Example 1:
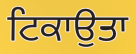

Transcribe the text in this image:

ਟਿਕਾਉਤਾ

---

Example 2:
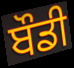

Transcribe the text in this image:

ਬੌਡੀ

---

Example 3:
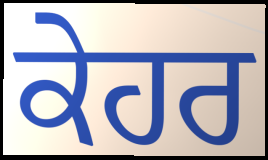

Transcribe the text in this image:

ਕੇਹਰ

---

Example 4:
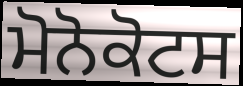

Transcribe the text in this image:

ਮੋਨੋਕੋਟਸ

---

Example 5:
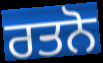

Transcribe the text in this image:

ਰਤਨੋ